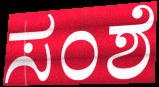
ಸಂಶೆ